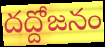
దద్దోజనం